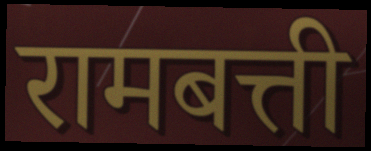
रामबत्ती